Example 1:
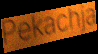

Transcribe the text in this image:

Pekachja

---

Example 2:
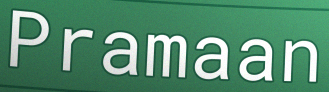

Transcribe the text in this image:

Pramaan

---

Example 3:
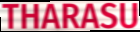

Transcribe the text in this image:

THARASU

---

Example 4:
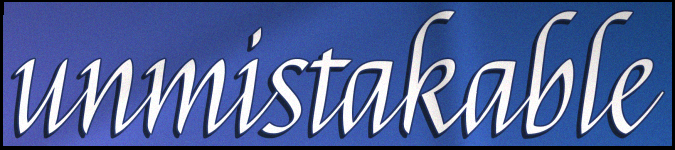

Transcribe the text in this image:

unmistakable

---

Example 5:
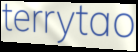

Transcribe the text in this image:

terrytao